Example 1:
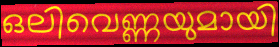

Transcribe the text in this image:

ഒലിവെണ്ണയുമായി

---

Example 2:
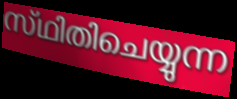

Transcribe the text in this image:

സ്‌ഥിതിചെയ്യുന്ന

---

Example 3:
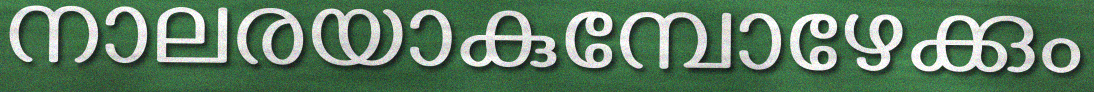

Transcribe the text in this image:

നാലരയാകുമ്പോഴേക്കും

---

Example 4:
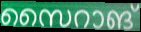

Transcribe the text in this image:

സൈറാങ്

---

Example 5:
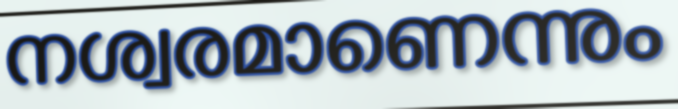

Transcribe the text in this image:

നശ്വരമാണെന്നും